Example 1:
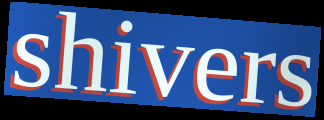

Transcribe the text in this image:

shivers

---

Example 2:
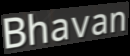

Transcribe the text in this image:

Bhavan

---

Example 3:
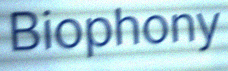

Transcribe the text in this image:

Biophony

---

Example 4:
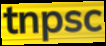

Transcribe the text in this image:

tnpsc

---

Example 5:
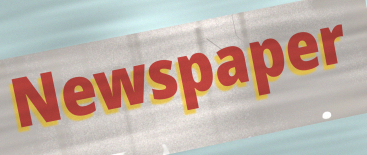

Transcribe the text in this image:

Newspaper